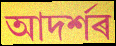
আদৰ্শৰ